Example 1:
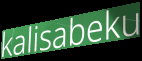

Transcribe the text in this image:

kalisabeku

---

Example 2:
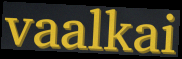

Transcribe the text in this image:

vaalkai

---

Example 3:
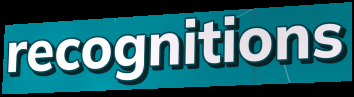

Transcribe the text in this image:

recognitions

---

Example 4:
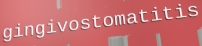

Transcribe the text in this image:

gingivostomatitis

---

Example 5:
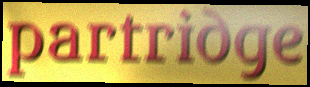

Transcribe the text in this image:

partridge